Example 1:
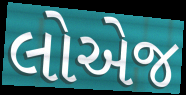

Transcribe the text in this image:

લોએજ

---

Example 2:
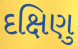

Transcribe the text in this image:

દક્ષિણુ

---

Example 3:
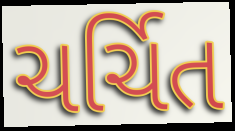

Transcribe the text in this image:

ચર્ચિત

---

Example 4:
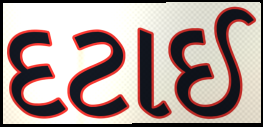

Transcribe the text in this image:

દટાઈ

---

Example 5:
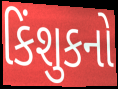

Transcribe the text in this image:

કિંશુકનો